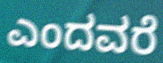
ಎಂದವರೆ